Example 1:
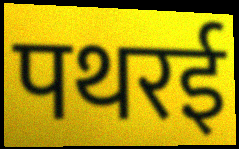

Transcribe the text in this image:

पथरई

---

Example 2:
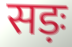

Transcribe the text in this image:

सड़ः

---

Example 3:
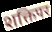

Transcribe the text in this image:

शक्तिपर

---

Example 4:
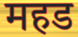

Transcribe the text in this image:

महड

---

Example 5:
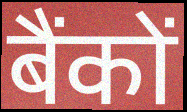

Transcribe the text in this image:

बैंकों